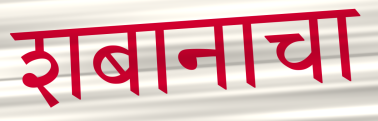
शबानाचा